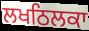
ਲਖਠਿਲਕਾ